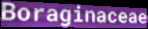
Boraginaceae